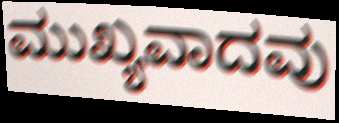
ಮುಖ್ಯವಾದವು